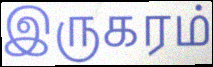
இருகரம்